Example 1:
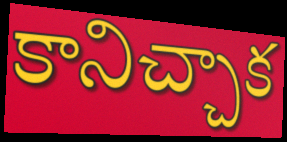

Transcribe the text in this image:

కానిచ్చాక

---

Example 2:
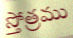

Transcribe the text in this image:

స్తోత్రము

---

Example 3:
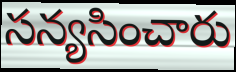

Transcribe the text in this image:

సన్యసించారు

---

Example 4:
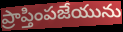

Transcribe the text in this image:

ప్రాప్తింపజేయును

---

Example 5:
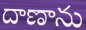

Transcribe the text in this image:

దాణాను